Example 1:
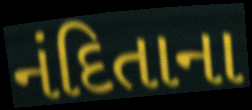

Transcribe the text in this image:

નંદિતાના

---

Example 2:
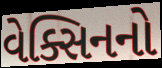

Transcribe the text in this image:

વેક્સિનનો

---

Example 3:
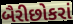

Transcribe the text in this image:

બૈરીછોકરાં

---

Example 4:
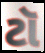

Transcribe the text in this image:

ટૉ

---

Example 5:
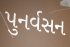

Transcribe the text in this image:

પુનર્વસન